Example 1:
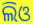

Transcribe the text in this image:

ଲିଓ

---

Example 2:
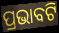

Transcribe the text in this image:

ପ୍ରଭାବଟି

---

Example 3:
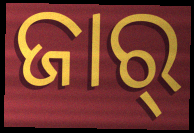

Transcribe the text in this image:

ଜାର୍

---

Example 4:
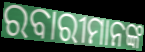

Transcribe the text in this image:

ରବାରୀମାନଙ୍କ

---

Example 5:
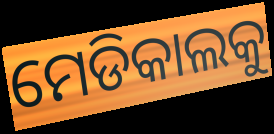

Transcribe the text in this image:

ମେଡିକାଲକୁ